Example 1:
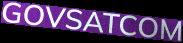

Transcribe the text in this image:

GOVSATCOM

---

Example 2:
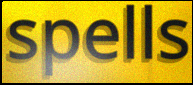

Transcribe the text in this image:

spells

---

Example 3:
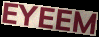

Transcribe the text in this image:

EYEEM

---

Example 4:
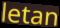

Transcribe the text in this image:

letan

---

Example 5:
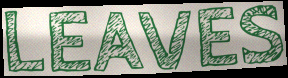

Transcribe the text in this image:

LEAVES